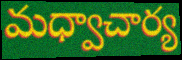
మధ్వాచార్య